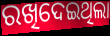
ରଖିଦେଇଥିଲା